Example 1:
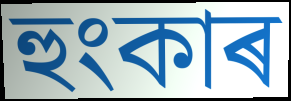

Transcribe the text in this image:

হুংকাৰ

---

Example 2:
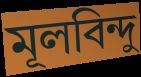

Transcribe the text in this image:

মূলবিন্দু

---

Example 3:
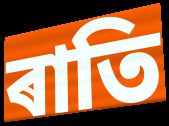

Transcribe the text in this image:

ৰাতি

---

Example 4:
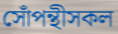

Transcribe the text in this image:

সোঁপন্থীসকল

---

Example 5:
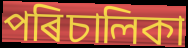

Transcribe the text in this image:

পৰিচালিকা